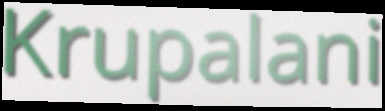
Krupalani